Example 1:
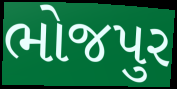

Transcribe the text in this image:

ભોજપુર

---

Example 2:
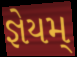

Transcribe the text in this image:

જ્ઞેયમ્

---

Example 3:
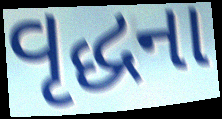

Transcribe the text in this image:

વૃદ્ધના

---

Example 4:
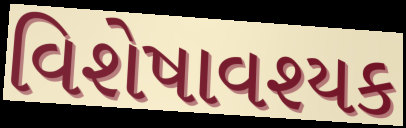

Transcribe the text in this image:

વિશેષાવશ્યક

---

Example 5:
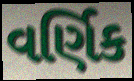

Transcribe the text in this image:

વર્ણિક